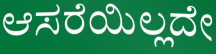
ಆಸರೆಯಿಲ್ಲದೇ